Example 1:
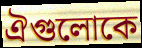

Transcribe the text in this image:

ঐগুলোকে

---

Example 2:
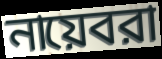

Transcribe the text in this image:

নায়েবরা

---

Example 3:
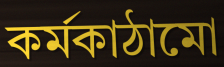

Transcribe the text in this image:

কর্মকাঠামো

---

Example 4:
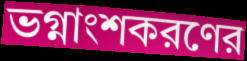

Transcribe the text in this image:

ভগ্নাংশকরণের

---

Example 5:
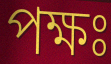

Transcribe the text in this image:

পক্ষঃ